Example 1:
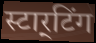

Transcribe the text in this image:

स्टार्टिंग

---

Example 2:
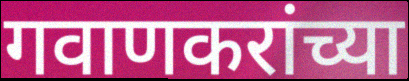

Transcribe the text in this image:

गवाणकरांच्या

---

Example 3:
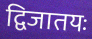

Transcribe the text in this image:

द्विजातयः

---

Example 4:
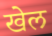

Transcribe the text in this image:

खेल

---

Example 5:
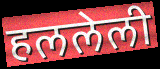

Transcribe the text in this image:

हललेली